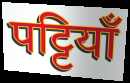
पट्टियाँ